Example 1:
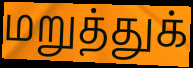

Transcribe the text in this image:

மறுத்துக்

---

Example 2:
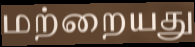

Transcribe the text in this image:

மற்றையது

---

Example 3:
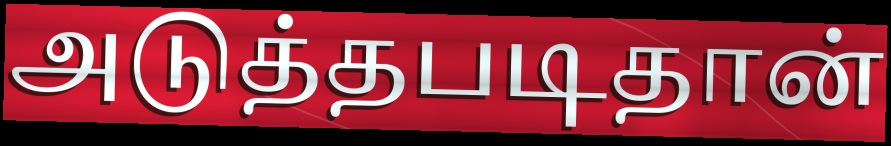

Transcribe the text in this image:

அடுத்தபடிதான்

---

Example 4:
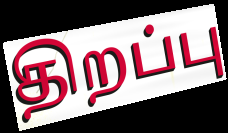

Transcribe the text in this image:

திறப்பு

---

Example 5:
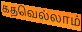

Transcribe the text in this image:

கதவெல்லாம்